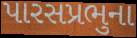
પારસપ્રભુના